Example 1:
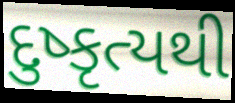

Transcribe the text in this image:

દુષ્કૃત્યથી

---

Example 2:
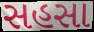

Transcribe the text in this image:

સહસા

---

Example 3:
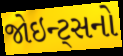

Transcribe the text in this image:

જોઇન્ટ્સનો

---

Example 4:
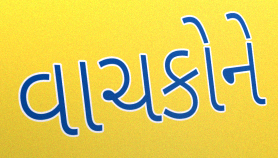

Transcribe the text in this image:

વાચકોને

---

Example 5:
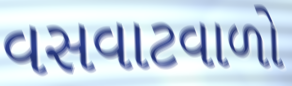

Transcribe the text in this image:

વસવાટવાળો